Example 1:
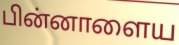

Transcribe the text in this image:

பின்னாளைய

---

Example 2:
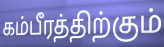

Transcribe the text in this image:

கம்பீரத்திற்கும்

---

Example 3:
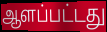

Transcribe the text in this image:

ஆளப்பட்டது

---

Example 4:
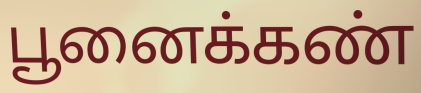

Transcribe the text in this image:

பூனைக்கண்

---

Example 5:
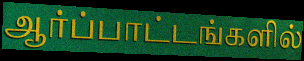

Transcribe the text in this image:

ஆர்ப்பாட்டங்களில்